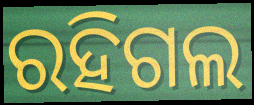
ରହିଗଲ